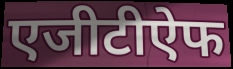
एजीटीऐफ